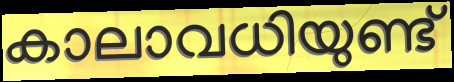
കാലാവധിയുണ്ട്